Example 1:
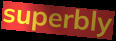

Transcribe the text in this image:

superbly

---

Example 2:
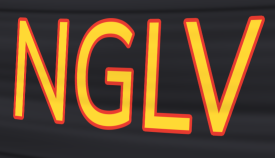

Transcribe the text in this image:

NGLV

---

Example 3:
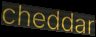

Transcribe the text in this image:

cheddar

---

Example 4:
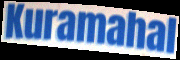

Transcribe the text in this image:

Kuramahal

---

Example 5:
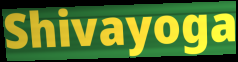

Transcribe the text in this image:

Shivayoga